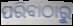
ପରିବାଠାରୁ